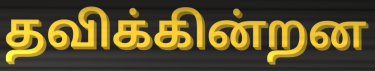
தவிக்கின்றன